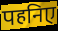
पहनिए